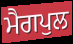
ਮੈਗਪੁਲ